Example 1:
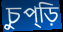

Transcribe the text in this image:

চুপ্‌ড়ি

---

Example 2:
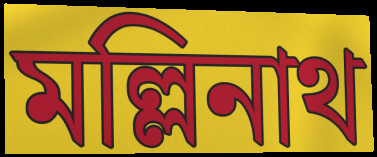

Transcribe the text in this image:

মল্লিনাথ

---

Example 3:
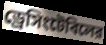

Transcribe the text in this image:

ড্রেসিংটেবিলের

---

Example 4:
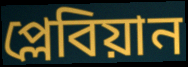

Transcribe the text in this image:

প্লেবিয়ান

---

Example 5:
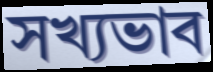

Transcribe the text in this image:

সখ্যভাব